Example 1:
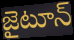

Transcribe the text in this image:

జైటూన్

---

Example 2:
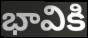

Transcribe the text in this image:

భావికి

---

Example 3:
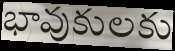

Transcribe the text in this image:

భావుకులకు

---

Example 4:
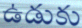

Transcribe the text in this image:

ఉడుకు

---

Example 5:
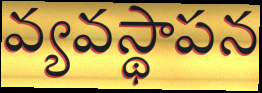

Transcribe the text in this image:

వ్యవస్థాపన